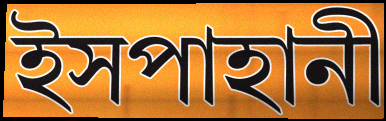
ইসপাহানী